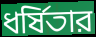
ধর্ষিতার